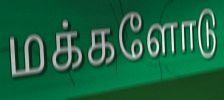
மக்களோடு